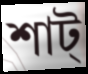
শাট্